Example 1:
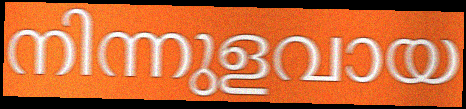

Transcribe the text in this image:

നിന്നുളവായ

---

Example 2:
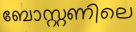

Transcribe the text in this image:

ബോസ്റ്റണിലെ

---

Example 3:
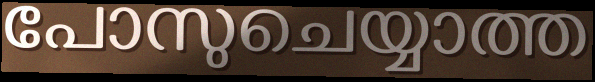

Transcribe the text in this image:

പോസുചെയ്യാത്ത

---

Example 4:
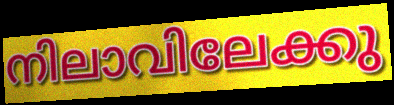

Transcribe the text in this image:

നിലാവിലേക്കു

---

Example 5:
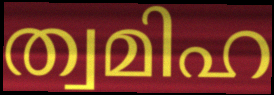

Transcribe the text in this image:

ത്വമിഹ